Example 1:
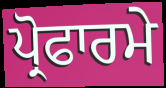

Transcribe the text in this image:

ਪ੍ਰੋਫਾਰਮੇ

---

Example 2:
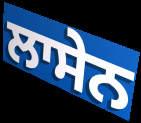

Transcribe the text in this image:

ਲਾਸੇਨ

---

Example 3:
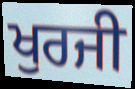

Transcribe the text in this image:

ਖੁਰਜੀ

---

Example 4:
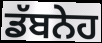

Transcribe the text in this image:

ਡੱਬਨੇਹ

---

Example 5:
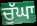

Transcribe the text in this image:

ਚੁੱਘਾ